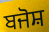
ਬਜੋਸ਼